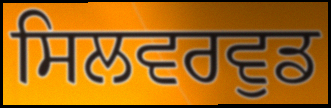
ਸਿਲਵਰਵੁਡ